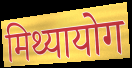
मिथ्यायोग